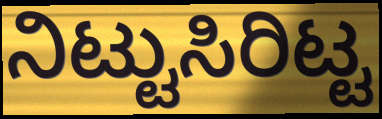
ನಿಟ್ಟುಸಿರಿಟ್ಟ